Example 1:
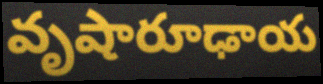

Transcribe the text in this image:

వృషారూఢాయ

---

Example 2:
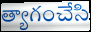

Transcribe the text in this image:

త్యాగంచేసి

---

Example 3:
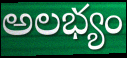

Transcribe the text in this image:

అలభ్యం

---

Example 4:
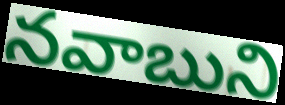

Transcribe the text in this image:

నవాబుని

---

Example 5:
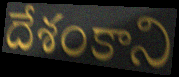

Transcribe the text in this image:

దేశంకాని